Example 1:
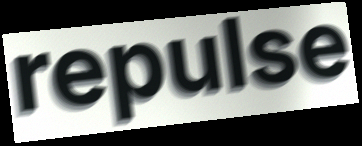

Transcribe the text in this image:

repulse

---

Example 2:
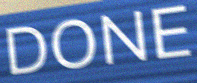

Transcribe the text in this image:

DONE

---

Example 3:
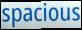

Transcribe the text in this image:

spacious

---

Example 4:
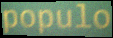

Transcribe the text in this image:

populo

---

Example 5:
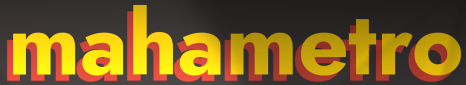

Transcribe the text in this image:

mahametro